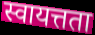
स्वायत्तता